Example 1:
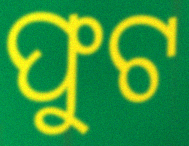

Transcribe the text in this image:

ଫୁଟ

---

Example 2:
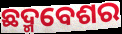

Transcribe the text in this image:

ଛଦ୍ମବେଶର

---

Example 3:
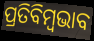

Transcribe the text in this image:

ପ୍ରତିବିମ୍ବଭାବ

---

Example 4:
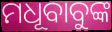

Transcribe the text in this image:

ମଧୂବାବୁଙ୍କ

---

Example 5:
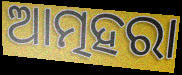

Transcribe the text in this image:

ଆତ୍ମହରା